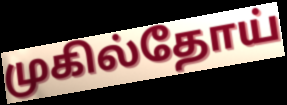
முகில்தோய்